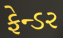
ફેન્ડર